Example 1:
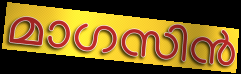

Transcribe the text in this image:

മാഗസിൻ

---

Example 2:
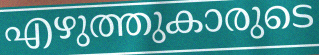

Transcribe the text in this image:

എഴുത്തുകാരുടെ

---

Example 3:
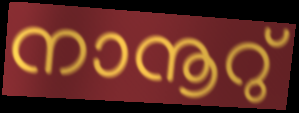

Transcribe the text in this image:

നാനൂറു്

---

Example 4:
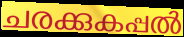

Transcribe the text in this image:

ചരക്കുകപ്പൽ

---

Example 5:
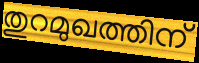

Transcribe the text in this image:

തുറമുഖത്തിന്